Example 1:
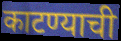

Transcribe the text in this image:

काटण्याची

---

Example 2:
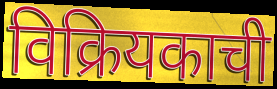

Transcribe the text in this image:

विक्रियकाची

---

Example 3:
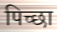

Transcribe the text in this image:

पिच्छा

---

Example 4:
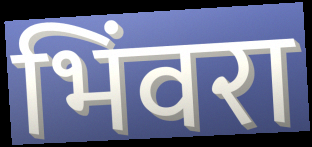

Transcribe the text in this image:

भिंवरा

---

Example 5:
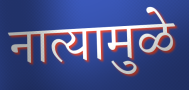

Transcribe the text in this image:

नात्यामुळे